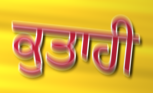
ਕੁਤਾਹੀ